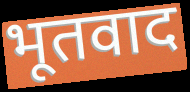
भूतवाद